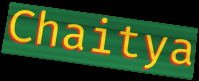
Chaitya